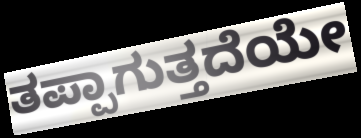
ತಪ್ಪಾಗುತ್ತದೆಯೇ